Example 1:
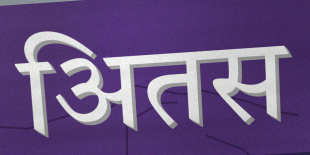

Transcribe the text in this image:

अितस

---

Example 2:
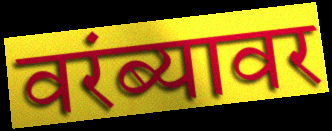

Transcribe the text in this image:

वरंब्यावर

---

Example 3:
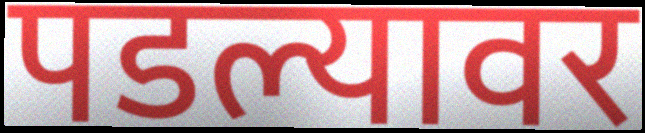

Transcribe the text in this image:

पडल्यावर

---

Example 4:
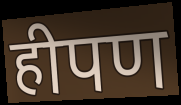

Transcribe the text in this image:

हीपण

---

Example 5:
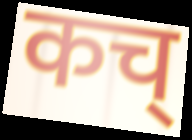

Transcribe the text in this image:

कच्